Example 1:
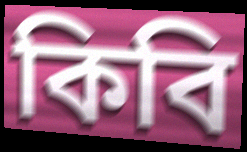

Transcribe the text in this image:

কিবি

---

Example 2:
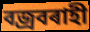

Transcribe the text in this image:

বজ্ৰবৰাহী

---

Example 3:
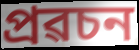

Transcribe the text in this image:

প্ৰৱচন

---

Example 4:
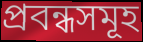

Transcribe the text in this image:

প্ৰবন্ধসমূহ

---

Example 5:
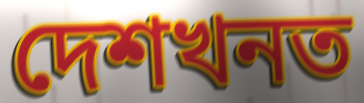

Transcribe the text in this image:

দেশখনত